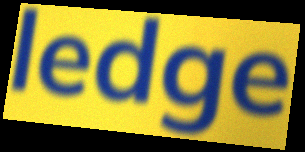
ledge